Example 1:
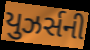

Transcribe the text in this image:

યુઝર્સની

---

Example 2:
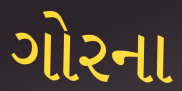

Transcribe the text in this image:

ગોરના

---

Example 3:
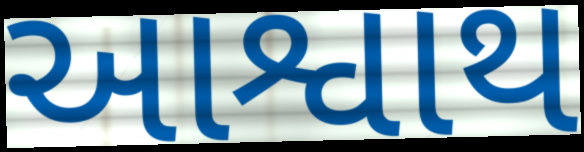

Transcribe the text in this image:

આશ્વાથ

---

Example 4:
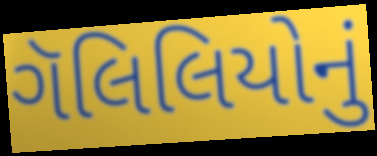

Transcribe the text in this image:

ગૅલિલિયોનું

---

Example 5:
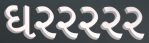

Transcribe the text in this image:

ઘરરરરર